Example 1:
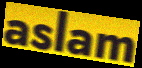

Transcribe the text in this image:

aslam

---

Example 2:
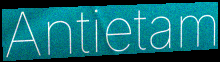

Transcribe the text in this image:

Antietam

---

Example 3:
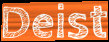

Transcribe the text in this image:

Deist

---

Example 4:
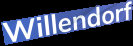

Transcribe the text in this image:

Willendorf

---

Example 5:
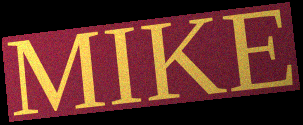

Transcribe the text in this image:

MIKE